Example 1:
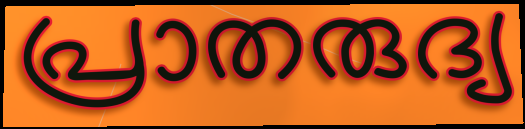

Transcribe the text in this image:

പ്രാതരുദ്യ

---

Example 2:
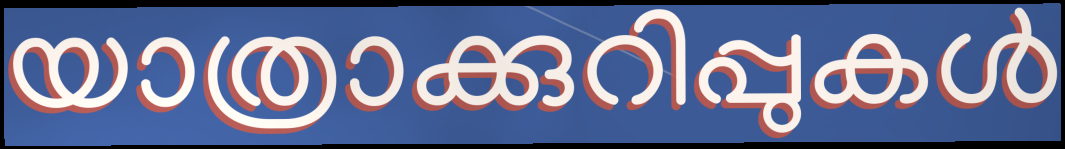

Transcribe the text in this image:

യാത്രാക്കുറിപ്പുകൾ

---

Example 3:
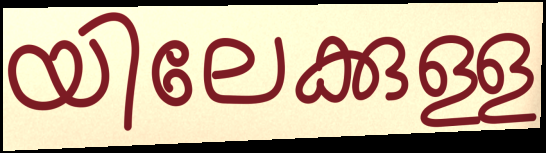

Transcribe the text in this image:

യിലേക്കുള്ള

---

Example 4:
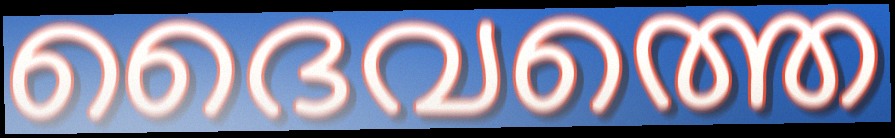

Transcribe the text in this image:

ദൈവത്തെ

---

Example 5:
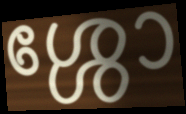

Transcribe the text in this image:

ശ്ശോ